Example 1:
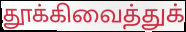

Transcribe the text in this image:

தூக்கிவைத்துக்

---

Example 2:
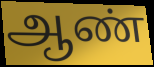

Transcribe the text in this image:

ஆண்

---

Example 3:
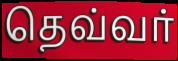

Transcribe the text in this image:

தெவ்வர்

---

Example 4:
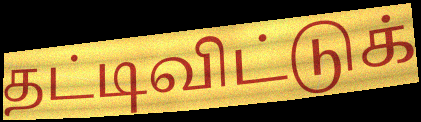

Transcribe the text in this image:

தட்டிவிட்டுக்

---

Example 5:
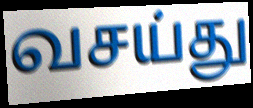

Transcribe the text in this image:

வசய்து